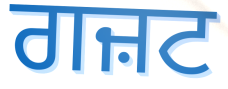
ਗਜ਼ਟ